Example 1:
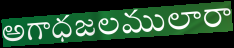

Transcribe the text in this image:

అగాధజలములారా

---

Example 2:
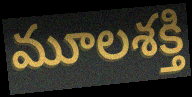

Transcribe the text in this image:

మూలశక్తి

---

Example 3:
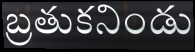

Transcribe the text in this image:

బ్రతుకనిండు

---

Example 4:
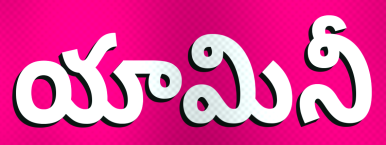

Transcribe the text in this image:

యామినీ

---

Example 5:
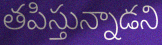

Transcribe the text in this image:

తపిస్తున్నాడని